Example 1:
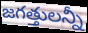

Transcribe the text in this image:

జగత్తులన్నీ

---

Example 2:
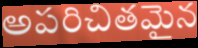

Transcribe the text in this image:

అపరిచితమైన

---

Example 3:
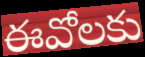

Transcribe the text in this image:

ఈవోలకు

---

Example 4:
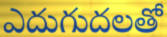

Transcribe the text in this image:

ఎదుగుదలతో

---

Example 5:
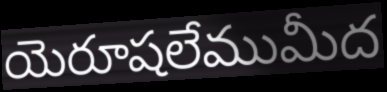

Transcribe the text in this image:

యెరూషలేముమీద